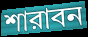
শারাবন